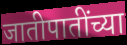
जातीपातींच्या